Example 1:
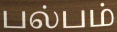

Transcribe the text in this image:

பல்பம்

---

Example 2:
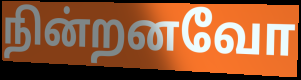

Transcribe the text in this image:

நின்றனவோ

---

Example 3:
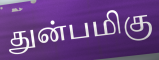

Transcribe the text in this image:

துன்பமிகு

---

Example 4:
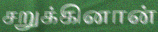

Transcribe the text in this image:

சறுக்கினான்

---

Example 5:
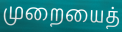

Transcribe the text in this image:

முறையைத்